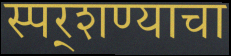
स्पर्शण्याचा